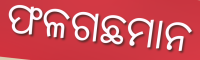
ଫଳଗଛମାନ